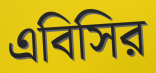
এবিসির